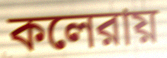
কলেরায়